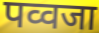
पव्वजा